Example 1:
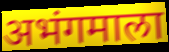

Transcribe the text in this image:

अभंगमाला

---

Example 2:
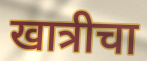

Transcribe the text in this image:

खात्रीचा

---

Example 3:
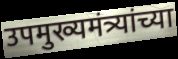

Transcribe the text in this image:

उपमुख्यमंत्र्यांच्या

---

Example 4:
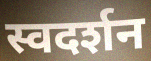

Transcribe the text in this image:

स्वदर्शन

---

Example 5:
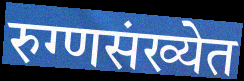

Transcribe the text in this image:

रुग्णसंख्येत